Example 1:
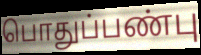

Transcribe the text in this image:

பொதுப்பண்பு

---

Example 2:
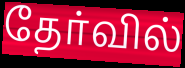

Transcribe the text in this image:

தேர்வில்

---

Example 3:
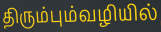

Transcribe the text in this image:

திரும்பும்வழியில்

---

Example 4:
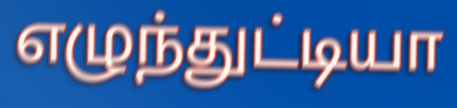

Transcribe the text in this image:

எழுந்துட்டியா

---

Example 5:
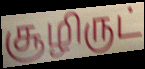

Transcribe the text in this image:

சூழிருட்